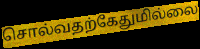
சொல்வதற்கேதுமில்லை